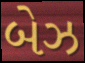
બેઝ